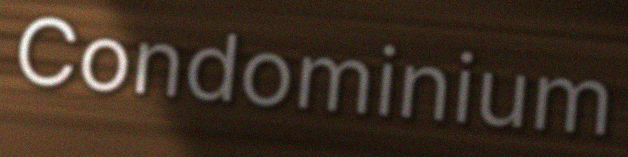
Condominium